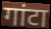
गांटा